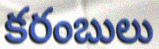
కరంబులు